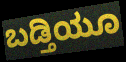
ಬಡ್ತಿಯೂ